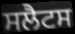
ਸਲੈਟਸ